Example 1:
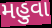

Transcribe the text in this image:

મહુવા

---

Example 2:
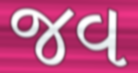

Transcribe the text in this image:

જવ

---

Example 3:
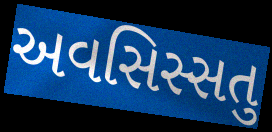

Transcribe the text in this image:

અવસિસ્સતુ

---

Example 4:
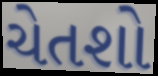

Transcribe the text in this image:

ચેતશો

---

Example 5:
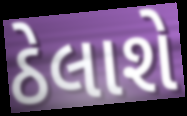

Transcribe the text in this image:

ઠેલાશે